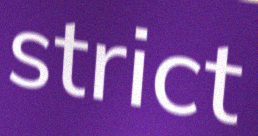
strict